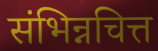
संभिन्नचित्त